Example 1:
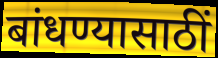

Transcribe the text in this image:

बांधण्यासाठीं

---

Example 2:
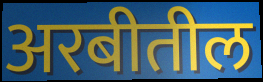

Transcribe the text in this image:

अरबीतील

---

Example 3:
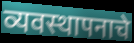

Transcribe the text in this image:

व्यवस्थापनाचे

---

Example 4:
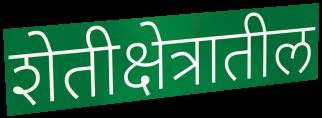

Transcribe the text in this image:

शेतीक्षेत्रातील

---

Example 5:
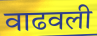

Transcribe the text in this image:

वाढवली